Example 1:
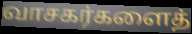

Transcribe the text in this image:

வாசகர்களைத்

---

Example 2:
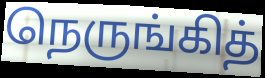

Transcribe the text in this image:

நெருங்கித்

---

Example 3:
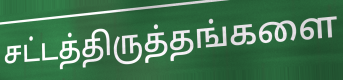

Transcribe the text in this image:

சட்டத்திருத்தங்களை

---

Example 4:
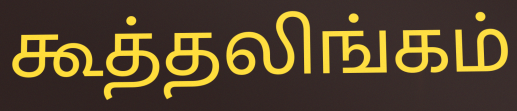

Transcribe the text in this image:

கூத்தலிங்கம்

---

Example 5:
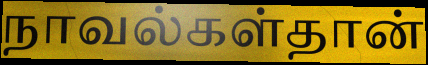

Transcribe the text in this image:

நாவல்கள்தான்